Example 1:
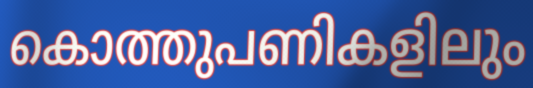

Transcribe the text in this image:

കൊത്തുപണികളിലും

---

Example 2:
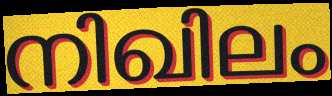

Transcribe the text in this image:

നിഖിലം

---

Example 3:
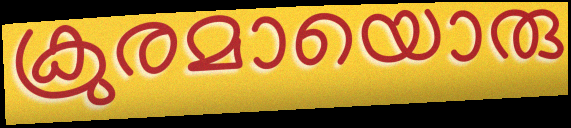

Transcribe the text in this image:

ക്രുരമായൊരു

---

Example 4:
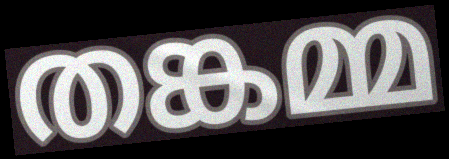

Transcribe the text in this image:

തങ്കമ്മ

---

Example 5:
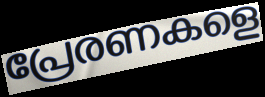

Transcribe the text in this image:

പ്രേരണകളെ